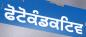
ਫੋਟੋਕੰਡਕਟਿਵ